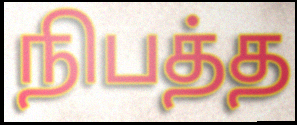
நிபத்த